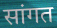
सांगत